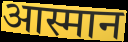
आस्मान